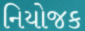
નિયોજક